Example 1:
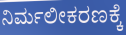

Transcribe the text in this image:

ನಿರ್ಮಲೀಕರಣಕ್ಕೆ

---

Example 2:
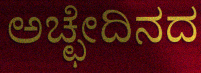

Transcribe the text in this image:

ಅಚ್ಛೇದಿನದ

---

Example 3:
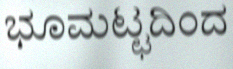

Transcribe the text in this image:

ಭೂಮಟ್ಟದಿಂದ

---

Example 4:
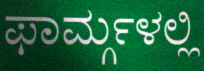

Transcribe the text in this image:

ಫಾರ್ಮ್ಗಳಲ್ಲಿ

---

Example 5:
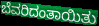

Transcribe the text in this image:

ಬೆವರಿದಂತಾಯಿತು